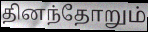
தினந்தோறும்